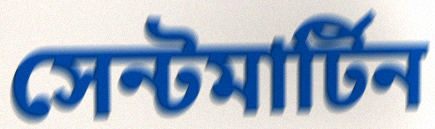
সেন্টমার্টিন